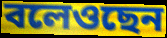
বলেওছেন